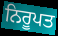
ਨਿਰੂਪਤ